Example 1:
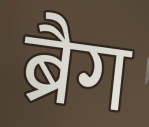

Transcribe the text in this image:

ब्रैग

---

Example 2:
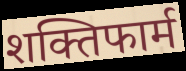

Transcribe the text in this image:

शक्तिफार्म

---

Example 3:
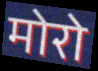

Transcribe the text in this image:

मोरो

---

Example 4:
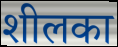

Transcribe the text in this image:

शीलका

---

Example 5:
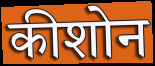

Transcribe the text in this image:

कीशोन